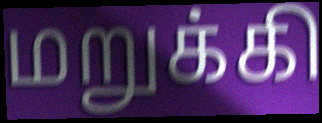
மறுக்கி